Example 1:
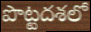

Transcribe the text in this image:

పొట్టదశలో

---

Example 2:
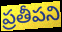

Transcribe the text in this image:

ప్రతీపని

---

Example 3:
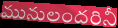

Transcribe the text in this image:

మునులందరినీ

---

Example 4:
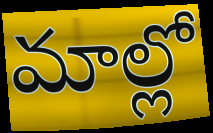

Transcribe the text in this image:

మాల్లో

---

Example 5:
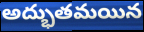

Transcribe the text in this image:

అద్భుతమయిన